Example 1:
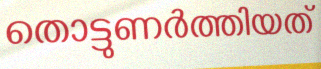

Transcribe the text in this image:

തൊട്ടുണർത്തിയത്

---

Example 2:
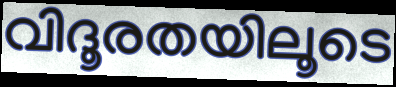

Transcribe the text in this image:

വിദൂരതയിലൂടെ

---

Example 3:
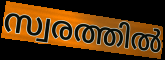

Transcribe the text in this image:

സ്വരത്തിൽ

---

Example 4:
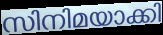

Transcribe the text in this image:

സിനിമയാക്കി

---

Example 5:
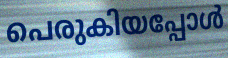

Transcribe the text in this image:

പെരുകിയപ്പോൾ